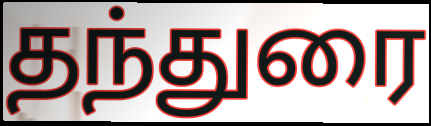
தந்துரை